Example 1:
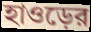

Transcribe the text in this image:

হাওড়ের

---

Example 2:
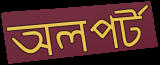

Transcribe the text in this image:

অলপর্ট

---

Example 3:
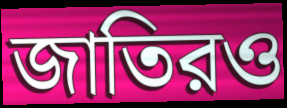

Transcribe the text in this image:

জাতিরও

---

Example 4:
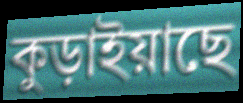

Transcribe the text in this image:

কুড়াইয়াছে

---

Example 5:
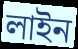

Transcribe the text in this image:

লাইন